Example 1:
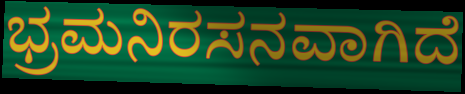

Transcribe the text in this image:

ಭ್ರಮನಿರಸನವಾಗಿದೆ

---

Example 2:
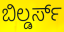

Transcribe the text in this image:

ಬಿಲ್ಡರ್ಸ್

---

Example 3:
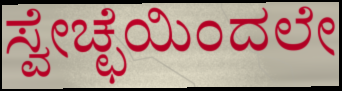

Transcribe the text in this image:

ಸ್ವೇಚ್ಛೆಯಿಂದಲೇ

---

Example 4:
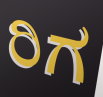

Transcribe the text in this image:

ರಿಗ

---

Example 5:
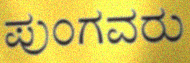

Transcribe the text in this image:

ಪುಂಗವರು